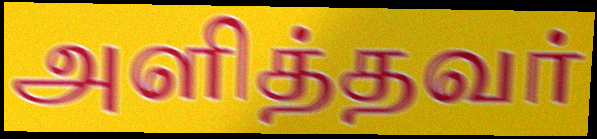
அளித்தவர்